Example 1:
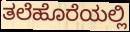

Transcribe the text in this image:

ತಲೆಹೊರೆಯಲ್ಲಿ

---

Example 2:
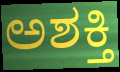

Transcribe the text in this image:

ಅಶಕ್ತಿ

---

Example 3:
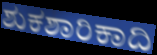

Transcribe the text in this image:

ಶುಕಶಾರಿಕಾದಿ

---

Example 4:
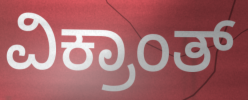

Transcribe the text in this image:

ವಿಕ್ರಾಂತ್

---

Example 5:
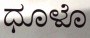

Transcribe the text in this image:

ಧೂಳೊ